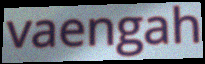
vaengah